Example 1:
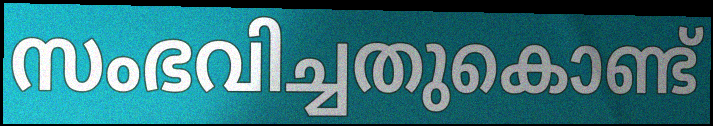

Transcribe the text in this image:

സംഭവിച്ചതുകൊണ്ട്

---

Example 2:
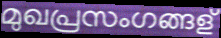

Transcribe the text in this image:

മുഖപ്രസംഗങ്ങള്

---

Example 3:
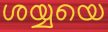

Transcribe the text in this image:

ശയ്യയെ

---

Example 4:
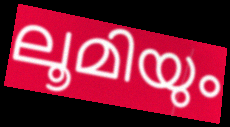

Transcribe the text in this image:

ലൂമിയും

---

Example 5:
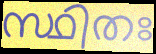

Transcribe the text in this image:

സ്ഥിതഃ